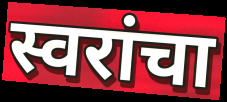
स्वरांचा